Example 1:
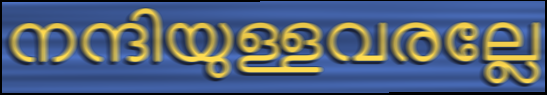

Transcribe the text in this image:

നന്ദിയുള്ളവരല്ലേ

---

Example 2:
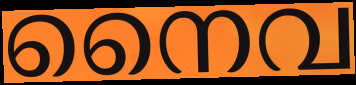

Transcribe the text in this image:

നൈവ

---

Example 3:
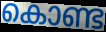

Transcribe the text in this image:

കൊണ്ട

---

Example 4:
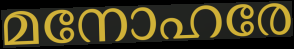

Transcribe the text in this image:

മനോഹരേ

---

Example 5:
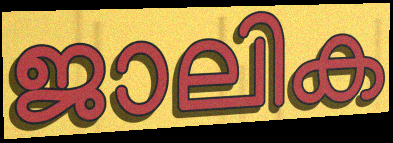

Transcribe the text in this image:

ജാലിക